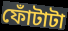
ফোঁটাটা